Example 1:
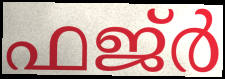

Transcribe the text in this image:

ഫജ്ർ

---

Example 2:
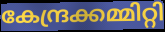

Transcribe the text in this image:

കേന്ദ്രക്കമ്മിറ്റി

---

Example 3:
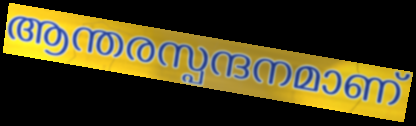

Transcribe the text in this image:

ആന്തരസ്പന്ദനമാണ്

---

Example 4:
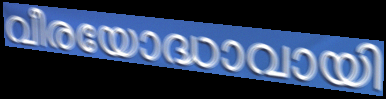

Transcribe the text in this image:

വീരയോദ്ധാവായി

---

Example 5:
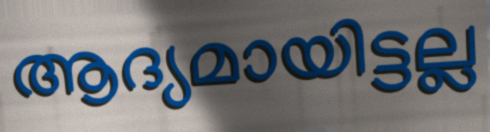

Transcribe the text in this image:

ആദ്യമായിട്ടല്ല